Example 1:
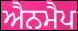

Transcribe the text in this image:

ਐਨਮੈਪ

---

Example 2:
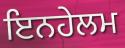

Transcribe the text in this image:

ਇਨਹੇਲਮ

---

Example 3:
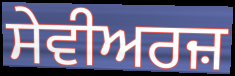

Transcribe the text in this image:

ਸੇਵੀਅਰਜ਼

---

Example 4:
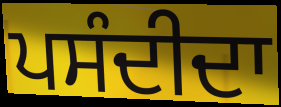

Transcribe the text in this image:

ਪਸੰਦੀਦਾ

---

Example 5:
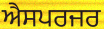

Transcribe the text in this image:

ਐਸਪਰਜਰ